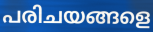
പരിചയങ്ങളെ